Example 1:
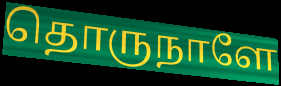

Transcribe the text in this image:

தொருநாளே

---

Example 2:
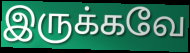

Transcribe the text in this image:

இருக்கவே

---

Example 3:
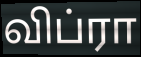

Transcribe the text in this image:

விப்ரா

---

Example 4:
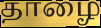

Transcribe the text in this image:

தாழை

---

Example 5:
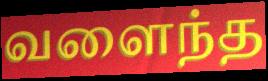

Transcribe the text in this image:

வளைந்த